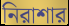
নিরাশার